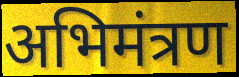
अभिमंत्रण